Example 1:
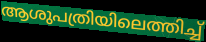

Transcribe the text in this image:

ആശുപത്രിയിലെത്തിച്ച്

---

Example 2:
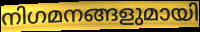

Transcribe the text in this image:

നിഗമനങ്ങളുമായി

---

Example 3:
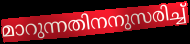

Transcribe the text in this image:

മാറുന്നതിനനുസരിച്ച്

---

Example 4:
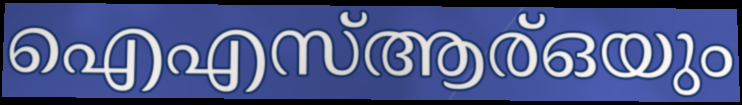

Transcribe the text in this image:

ഐഎസ്ആര്ഒയും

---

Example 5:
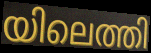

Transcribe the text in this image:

യിലെത്തി